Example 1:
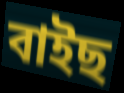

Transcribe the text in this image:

বাইছ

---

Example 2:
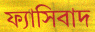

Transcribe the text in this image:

ফ্যাসিবাদ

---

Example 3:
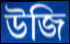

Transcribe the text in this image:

উজি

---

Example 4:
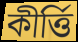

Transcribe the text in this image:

কীৰ্ত্তি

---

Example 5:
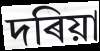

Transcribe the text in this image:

দৰিয়া